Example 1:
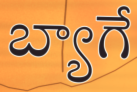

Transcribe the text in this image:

బ్యాగే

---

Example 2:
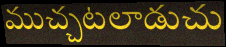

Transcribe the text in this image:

ముచ్చటలాడుచు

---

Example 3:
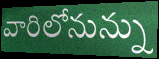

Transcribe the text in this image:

వారిలోనున్ను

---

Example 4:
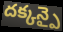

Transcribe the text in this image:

దక్కన్పై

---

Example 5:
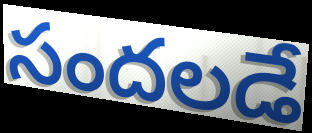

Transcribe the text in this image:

సందలడే